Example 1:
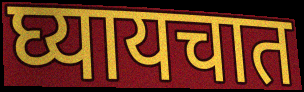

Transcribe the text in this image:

घ्यायचात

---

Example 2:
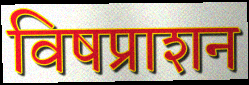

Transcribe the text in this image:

विषप्राशन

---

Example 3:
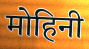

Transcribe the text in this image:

मोहिनी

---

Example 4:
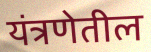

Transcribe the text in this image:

यंत्रणेतील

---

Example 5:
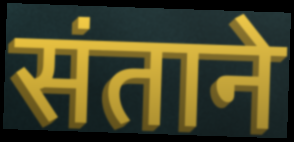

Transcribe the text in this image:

संताने